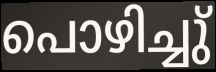
പൊഴിച്ചു്